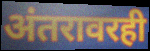
अंतरावरही